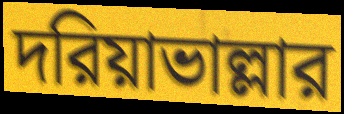
দরিয়াভাল্লার